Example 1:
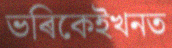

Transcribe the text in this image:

ভৰিকেইখনত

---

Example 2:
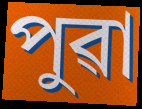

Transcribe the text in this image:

পুৱা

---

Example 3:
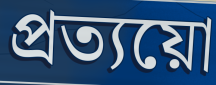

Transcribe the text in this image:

প্ৰত্যয়ো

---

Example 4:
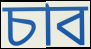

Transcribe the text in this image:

চাব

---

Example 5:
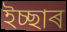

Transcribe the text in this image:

ইচ্ছাৰ